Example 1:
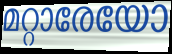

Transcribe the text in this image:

മറ്റാരേയോ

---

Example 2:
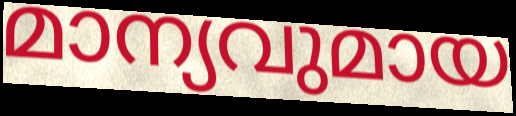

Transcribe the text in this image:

മാന്യവുമായ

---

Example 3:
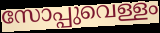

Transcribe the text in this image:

സോപ്പുവെള്ളം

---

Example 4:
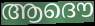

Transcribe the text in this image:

ആദൌ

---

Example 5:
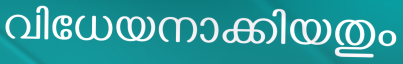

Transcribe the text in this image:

വിധേയനാക്കിയതും